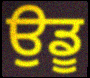
ਉਡੂ